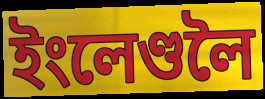
ইংলেণ্ডলৈ